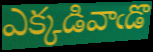
ఎక్కడివాఁడొ